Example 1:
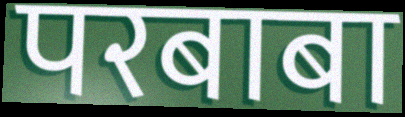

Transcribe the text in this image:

परबाबा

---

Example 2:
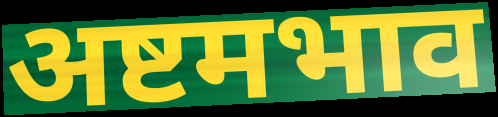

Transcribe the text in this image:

अष्टमभाव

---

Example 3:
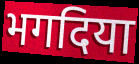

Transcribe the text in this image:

भगदिया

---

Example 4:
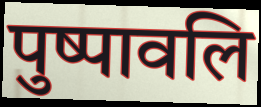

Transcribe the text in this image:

पुष्पावलि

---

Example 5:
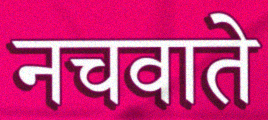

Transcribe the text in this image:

नचवाते